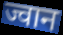
ज्वान